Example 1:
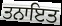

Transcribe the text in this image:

ਤਨਾਇਤ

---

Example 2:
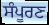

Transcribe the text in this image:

ਸੰਪੂਰਣ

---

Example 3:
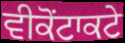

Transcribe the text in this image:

ਵੀਕੋਂਟਾਕਟੇ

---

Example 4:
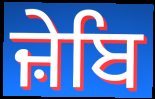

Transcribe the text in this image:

ਜ਼ੇਬਿ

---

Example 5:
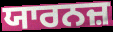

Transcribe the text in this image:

ਯਾਰਨਜ਼